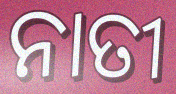
ନାତୀ